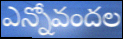
ఎన్నోవందల